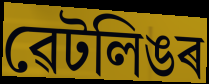
ৱেটলিঙৰ